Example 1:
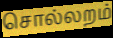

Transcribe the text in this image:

சொல்லறம்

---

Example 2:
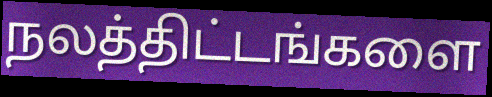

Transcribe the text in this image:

நலத்திட்டங்களை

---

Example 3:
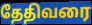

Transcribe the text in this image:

தேதிவரை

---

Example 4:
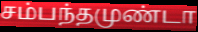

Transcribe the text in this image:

சம்பந்தமுண்டா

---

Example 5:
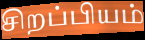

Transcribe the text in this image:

சிறப்பியம்